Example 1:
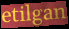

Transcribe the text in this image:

etilgan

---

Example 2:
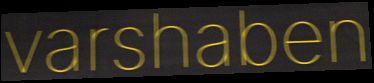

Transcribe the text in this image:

varshaben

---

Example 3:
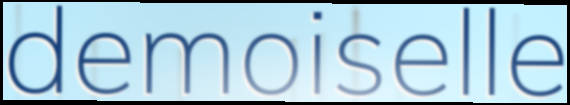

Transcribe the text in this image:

demoiselle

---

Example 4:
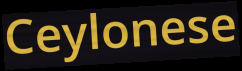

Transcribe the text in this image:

Ceylonese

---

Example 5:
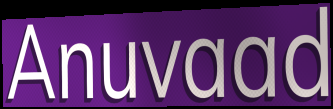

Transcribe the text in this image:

Anuvaad